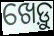
ଖେଡ଼ୁ